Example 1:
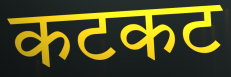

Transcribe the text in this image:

कटकट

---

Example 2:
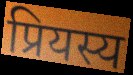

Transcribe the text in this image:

प्रियस्य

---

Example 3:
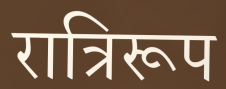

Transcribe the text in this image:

रात्रिरूप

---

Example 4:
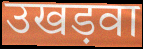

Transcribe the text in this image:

उखड़वा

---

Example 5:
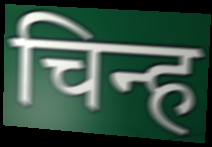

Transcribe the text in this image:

चिन्ह